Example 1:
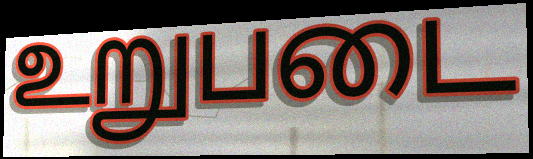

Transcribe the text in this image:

உறுபடை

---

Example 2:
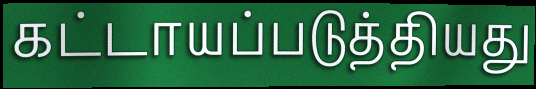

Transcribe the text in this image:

கட்டாயப்படுத்தியது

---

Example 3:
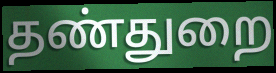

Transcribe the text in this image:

தண்துறை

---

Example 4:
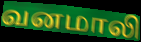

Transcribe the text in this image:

வனமாலி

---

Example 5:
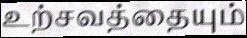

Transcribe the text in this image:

உற்சவத்தையும்